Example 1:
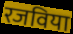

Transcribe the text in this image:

रजविया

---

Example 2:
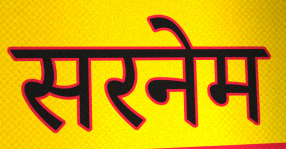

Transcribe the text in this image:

सरनेम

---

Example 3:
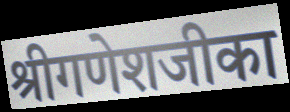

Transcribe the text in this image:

श्रीगणेशजीका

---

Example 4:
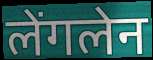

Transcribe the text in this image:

लेंगलेन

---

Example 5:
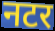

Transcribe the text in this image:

नटर